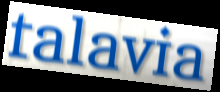
talavia